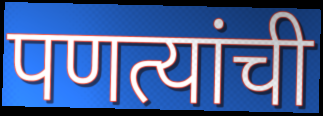
पणत्यांची